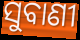
ସୁବାଣୀ